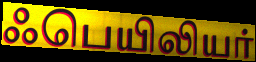
ஃபெயிலியர்